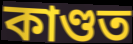
কাণ্ডত